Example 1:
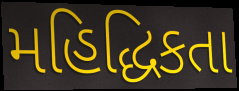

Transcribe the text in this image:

મહિદ્ધિકતા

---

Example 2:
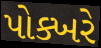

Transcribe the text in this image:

પોક્ખરે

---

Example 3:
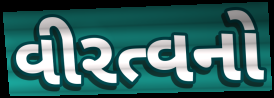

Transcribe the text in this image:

વીરત્વનો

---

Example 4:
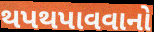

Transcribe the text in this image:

થપથપાવવાનો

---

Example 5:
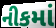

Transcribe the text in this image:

નીકમાં